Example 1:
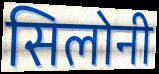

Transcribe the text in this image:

सिलोनी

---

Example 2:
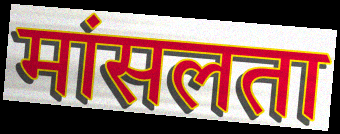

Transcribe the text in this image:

मांसलता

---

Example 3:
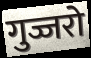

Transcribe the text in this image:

गुज्जरो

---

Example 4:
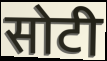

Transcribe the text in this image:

सोटी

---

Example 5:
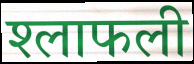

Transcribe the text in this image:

श्लाफली